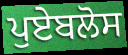
ਪੁਏਬਲੋਸ